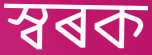
স্বৰক